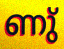
ണു്